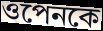
ওপেনকে